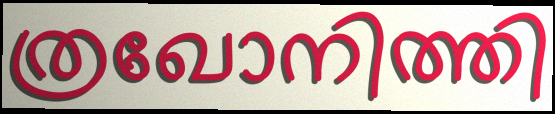
ത്രഖോനിത്തി